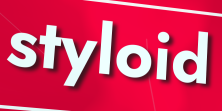
styloid